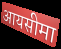
आयसीमा